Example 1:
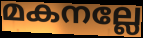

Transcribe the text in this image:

മകനല്ലേ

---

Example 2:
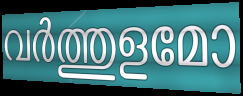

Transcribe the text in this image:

വർത്തുളമോ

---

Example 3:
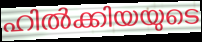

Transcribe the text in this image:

ഹിൽക്കിയയുടെ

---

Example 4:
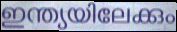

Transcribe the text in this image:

ഇന്ത്യയിലേക്കും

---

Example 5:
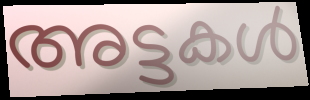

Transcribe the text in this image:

അട്ടകൾ